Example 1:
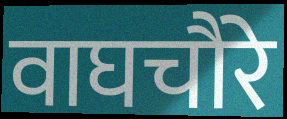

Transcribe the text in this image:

वाघचौरे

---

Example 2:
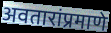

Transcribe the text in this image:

अवतारांप्रमाणे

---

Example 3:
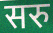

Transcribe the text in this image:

सरु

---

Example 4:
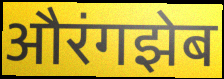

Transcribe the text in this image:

औरंगझेब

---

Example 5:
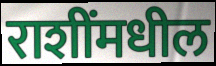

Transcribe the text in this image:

राशींमधील